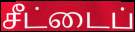
சீட்டைப்